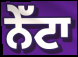
ਨੇੱਟਾ